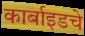
कार्बाइडचे